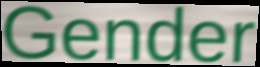
Gender